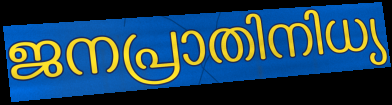
ജനപ്രാതിനിധ്യ